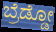
ಬ್ರೆಡ್ಡೋ